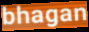
bhagan